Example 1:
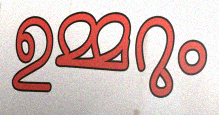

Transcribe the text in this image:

ഉമ്മറും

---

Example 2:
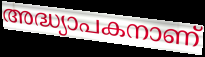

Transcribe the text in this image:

അദ്ധ്യാപകനാണ്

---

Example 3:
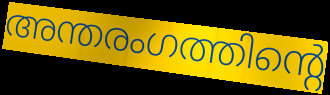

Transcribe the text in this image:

അന്തരംഗത്തിന്റെ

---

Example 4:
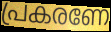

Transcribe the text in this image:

പ്രകരണേ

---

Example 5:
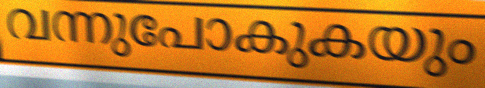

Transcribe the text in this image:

വന്നുപോകുകയും